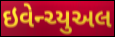
ઇવેન્ચ્યુઅલ